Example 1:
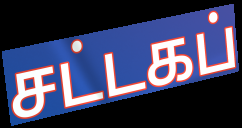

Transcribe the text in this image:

சட்டகப்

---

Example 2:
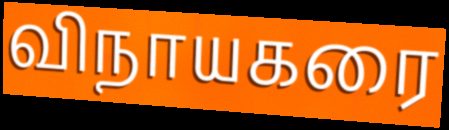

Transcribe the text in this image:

விநாயகரை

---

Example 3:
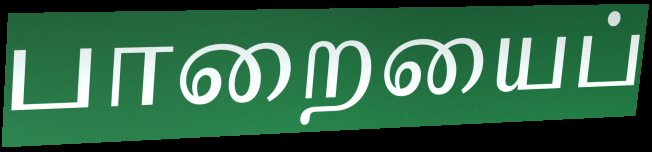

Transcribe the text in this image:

பாறையைப்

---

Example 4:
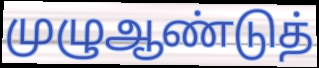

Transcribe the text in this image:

முழுஆண்டுத்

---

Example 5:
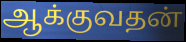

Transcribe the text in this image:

ஆக்குவதன்